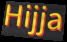
Hijja